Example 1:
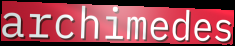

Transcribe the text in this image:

archimedes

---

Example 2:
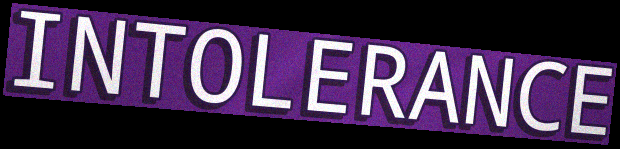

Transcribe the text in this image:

INTOLERANCE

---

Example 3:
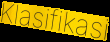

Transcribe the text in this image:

Klasifikasi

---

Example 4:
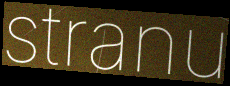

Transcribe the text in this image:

stranu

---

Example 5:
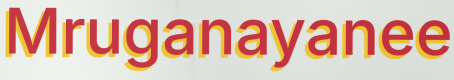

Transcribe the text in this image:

Mruganayanee